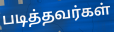
படித்தவர்கள்